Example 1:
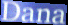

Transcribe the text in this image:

Dana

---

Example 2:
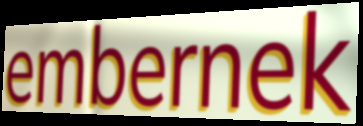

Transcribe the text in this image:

embernek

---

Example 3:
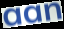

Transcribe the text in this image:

aan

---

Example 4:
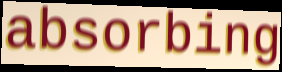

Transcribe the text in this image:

absorbing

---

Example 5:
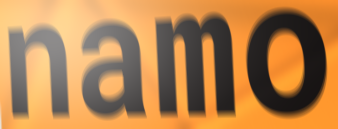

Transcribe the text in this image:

namo